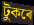
টুকৰে